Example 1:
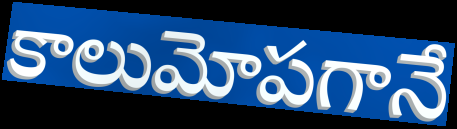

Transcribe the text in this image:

కాలుమోపగానే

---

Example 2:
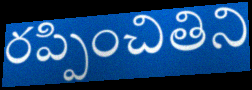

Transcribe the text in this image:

రప్పించితిని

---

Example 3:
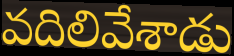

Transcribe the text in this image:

వదిలివేశాడు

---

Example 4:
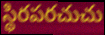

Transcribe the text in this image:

స్థిరపరచుచు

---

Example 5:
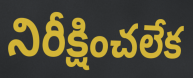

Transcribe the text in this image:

నిరీక్షించలేక